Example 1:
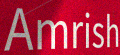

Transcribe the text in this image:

Amrish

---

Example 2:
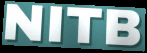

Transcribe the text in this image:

NITB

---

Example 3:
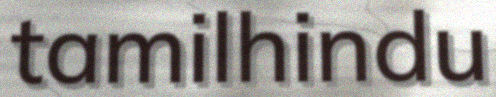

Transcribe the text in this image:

tamilhindu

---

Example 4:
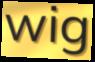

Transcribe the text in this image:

wig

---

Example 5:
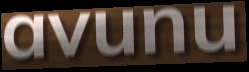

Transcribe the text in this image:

avunu